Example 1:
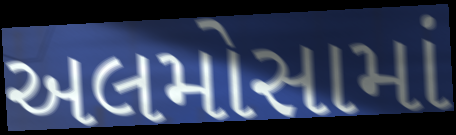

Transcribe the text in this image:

અલમોસામાં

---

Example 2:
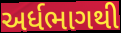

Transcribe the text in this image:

અર્ધભાગથી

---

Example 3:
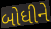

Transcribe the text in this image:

બોધીને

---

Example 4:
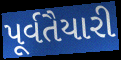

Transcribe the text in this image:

પૂર્વતૈયારી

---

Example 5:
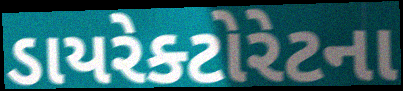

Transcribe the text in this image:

ડાયરેક્ટોરેટના